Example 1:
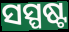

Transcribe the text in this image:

ସସ୍ପଷ୍ଟ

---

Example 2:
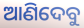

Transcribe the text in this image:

ଆଣିଦେବୁ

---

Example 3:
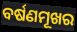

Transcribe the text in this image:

ବର୍ଷଣମୂଖର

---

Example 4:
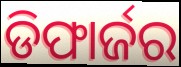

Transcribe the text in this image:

ଡିଫାର୍ଜର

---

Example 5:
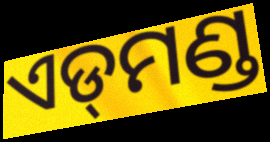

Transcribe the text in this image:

ଏଡ୍‌ମଣ୍ଡ